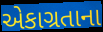
એકાગ્રતાના